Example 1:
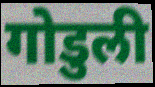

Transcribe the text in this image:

गोडुली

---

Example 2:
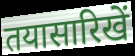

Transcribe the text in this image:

तयासारिखें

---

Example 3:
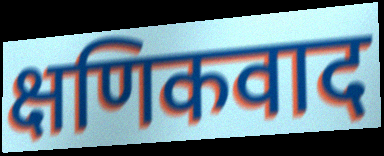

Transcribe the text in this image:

क्षणिकवाद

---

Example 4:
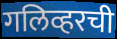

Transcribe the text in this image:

गलिव्हरची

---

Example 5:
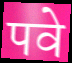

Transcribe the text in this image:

पवे